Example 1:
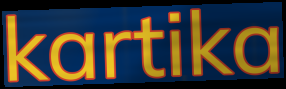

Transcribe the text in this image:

kartika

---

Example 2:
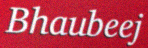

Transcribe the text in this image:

Bhaubeej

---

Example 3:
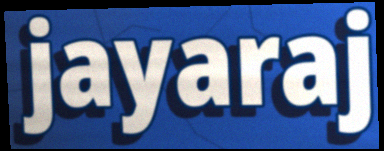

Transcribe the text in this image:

jayaraj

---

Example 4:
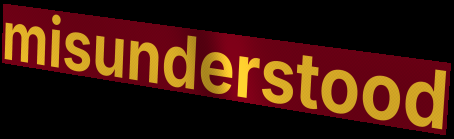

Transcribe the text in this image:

misunderstood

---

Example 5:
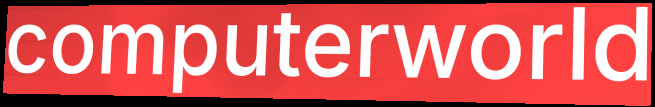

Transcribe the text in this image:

computerworld